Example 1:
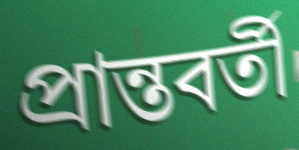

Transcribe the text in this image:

প্রান্তবর্তী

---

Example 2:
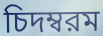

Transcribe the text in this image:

চিদম্বরম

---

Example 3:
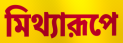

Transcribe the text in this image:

মিথ্যারূপে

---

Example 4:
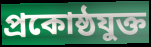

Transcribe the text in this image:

প্রকোষ্ঠযুক্ত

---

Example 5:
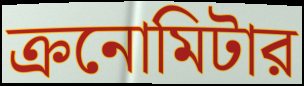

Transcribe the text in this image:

ক্রনোমিটার